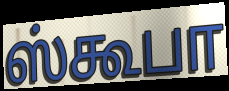
ஸ்கூபா